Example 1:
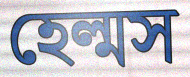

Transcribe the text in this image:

হেল্মস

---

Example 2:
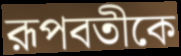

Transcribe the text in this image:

রূপবতীকে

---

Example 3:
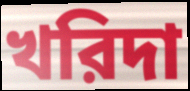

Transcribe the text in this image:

খরিদা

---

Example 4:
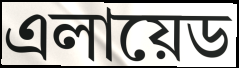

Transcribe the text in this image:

এলায়েড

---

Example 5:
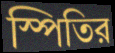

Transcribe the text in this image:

স্পিতির